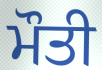
ਮੌਤੀ